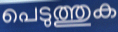
പെടുത്തുക